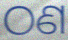
ଠଣ